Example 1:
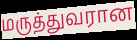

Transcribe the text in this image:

மருத்துவரான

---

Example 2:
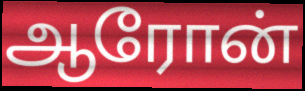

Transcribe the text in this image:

ஆரோன்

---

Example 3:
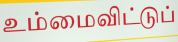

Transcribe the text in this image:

உம்மைவிட்டுப்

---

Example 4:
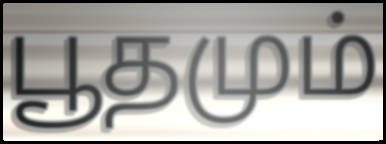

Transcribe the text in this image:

பூதமும்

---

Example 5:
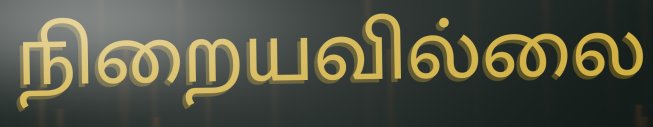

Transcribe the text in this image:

நிறையவில்லை